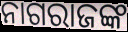
ନାଗରାଜଙ୍କ